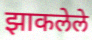
झाकलेले